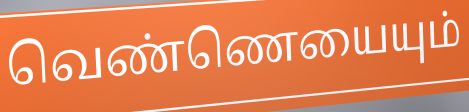
வெண்ணெயையும்